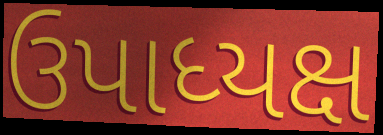
ઉપાધ્યક્ષ